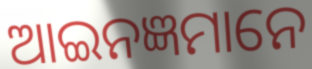
ଆଇନଜ୍ଞମାନେ